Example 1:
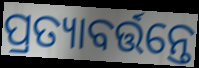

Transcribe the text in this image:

ପ୍ରତ୍ୟାବର୍ତ୍ତନ୍ତେ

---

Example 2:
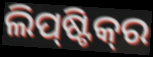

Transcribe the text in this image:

ଲିପ୍‌ଷ୍ଟିକ୍‌ର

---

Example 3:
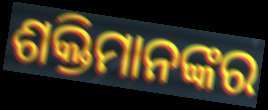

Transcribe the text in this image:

ଶକ୍ତିମାନଙ୍କର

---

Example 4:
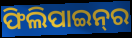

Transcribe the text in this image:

ଫିଲିପାଇନ୍‌ର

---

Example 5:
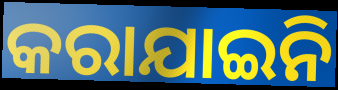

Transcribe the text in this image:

କରାଯାଇନି